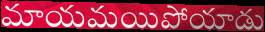
మాయమయిపోయాడు